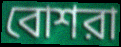
বোশরা